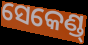
ସେକେଣ୍ଡ୍